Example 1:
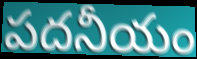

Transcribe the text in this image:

పదనీయం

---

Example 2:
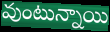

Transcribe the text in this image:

వుంటున్నాయి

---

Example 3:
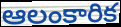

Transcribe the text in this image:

ఆలంకారిక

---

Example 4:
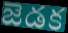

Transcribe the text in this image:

జెడక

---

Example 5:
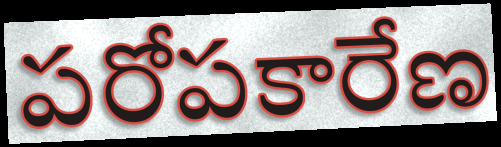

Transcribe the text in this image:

పరోపకారేణ